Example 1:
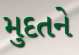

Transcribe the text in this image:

મુદતને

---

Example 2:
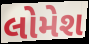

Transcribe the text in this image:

લોમેશ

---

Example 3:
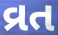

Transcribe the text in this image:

વ્રત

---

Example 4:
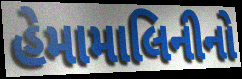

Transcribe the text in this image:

હેમામાલિનીનો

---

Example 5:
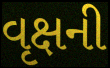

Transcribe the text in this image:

વૃક્ષની